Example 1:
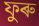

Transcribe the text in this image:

ফুৰু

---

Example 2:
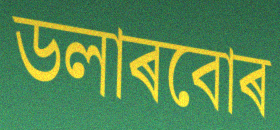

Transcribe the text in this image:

ডলাৰবোৰ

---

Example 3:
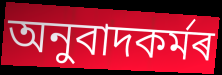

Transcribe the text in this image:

অনুবাদকৰ্মৰ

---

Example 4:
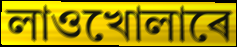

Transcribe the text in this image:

লাওখোলাৰে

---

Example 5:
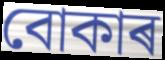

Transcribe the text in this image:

বোকাৰ